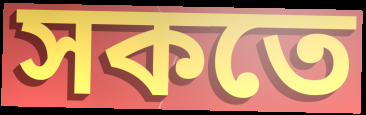
সকতে